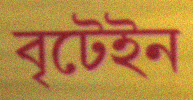
বৃটেইন